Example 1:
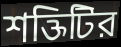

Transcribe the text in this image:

শক্তিটির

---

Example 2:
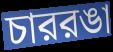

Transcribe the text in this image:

চাররঙা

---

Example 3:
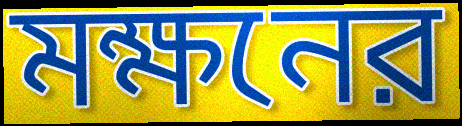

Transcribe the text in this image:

মক্ষনের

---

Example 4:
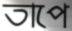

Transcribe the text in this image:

তাপে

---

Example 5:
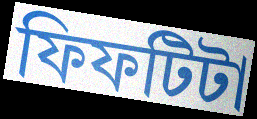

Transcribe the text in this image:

ফিফটিটা